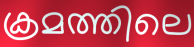
ക്രമത്തിലെ